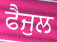
ਫੈਜੁਲ